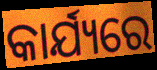
କାର୍ଯ୍ୟରେ